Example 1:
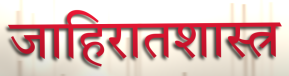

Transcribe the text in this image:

जाहिरातशास्त्र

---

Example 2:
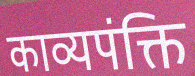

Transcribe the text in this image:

काव्यपंक्ति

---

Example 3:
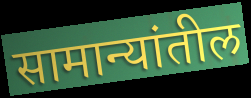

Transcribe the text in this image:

सामान्यांतील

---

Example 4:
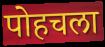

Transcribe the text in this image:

पोहचला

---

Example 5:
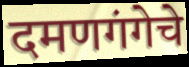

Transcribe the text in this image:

दमणगंगेचे